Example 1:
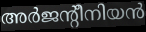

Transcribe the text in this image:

അർജന്റീനിയൻ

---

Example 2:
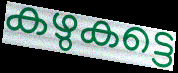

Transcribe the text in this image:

കഴുകട്ടെ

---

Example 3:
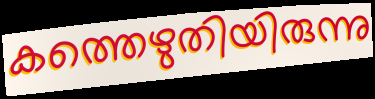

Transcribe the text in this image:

കത്തെഴുതിയിരുന്നു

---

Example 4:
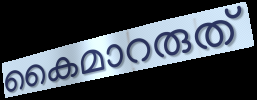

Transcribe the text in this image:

കൈമാറരുത്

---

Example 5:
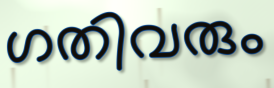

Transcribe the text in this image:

ഗതിവരും